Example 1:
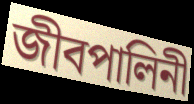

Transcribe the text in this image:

জীবপালিনী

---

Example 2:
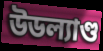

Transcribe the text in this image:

উডল্যাণ্ড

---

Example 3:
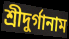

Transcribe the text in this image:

শ্রীদুর্গানাম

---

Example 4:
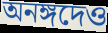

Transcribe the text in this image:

অনঙ্গদেও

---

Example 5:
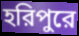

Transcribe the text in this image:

হরিপুরে